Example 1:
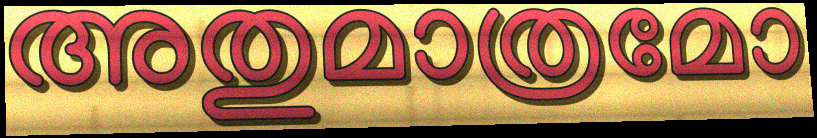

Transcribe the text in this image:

അതുമാത്രമോ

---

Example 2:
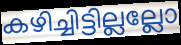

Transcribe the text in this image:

കഴിച്ചിട്ടില്ലല്ലോ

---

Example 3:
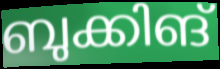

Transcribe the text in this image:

ബുക്കിങ്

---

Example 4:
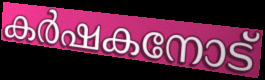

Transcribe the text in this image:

കർഷകനോട്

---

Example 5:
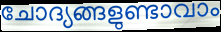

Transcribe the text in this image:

ചോദ്യങ്ങളുണ്ടാവാം